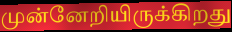
முன்னேறியிருக்கிறது